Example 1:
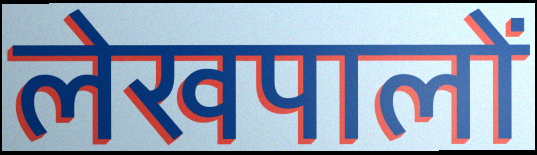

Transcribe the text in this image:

लेखपालों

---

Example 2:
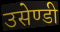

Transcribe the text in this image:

उसेण्डी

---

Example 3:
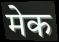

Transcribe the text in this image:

मेक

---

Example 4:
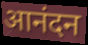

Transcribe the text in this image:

आनंदन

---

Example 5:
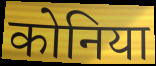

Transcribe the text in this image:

कोनिया